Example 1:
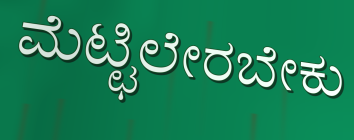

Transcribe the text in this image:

ಮೆಟ್ಟಿಲೇರಬೇಕು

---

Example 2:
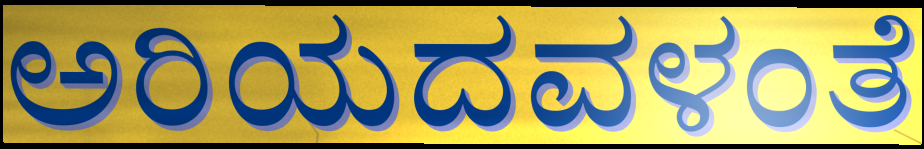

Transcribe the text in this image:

ಅರಿಯದವಳಂತೆ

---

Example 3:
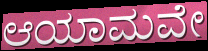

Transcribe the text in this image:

ಆಯಾಮವೇ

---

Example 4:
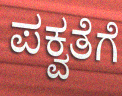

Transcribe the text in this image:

ಪಕ್ವತೆಗೆ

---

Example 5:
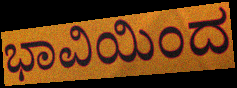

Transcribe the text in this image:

ಭಾವಿಯಿಂದ